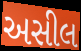
અસીલ